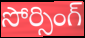
సోర్సింగ్